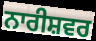
ਨਾਰੀਸ਼ਵਰ